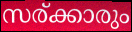
സര്ക്കാരും